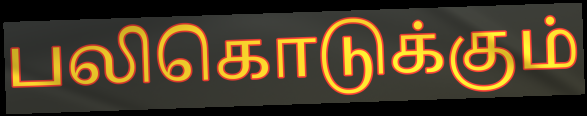
பலிகொடுக்கும்